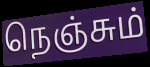
நெஞ்சும்